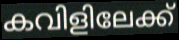
കവിളിലേക്ക്